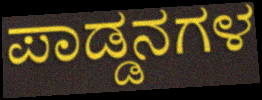
ಪಾಡ್ಡನಗಳ